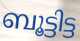
ബൂട്ടിട്ട